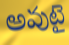
అవుటై